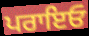
ਪਰਾਇਓ